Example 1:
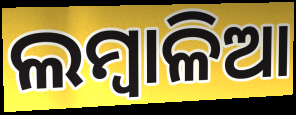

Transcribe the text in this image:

ଲମ୍ବାଳିଆ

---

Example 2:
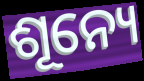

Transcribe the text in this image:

ଶୂନ୍ୟେ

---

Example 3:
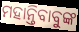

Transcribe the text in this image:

ମହାନ୍ତିବାବୁଙ୍କ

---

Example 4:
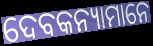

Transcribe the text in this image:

ଦେବକନ୍ୟାମାନେ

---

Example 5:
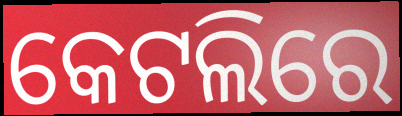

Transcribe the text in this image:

କେଟଲିରେ